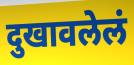
दुखावलेलं